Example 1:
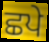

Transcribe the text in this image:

ਛਪੇ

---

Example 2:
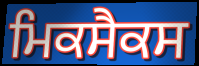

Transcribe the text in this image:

ਮਿਕਸੈਕਸ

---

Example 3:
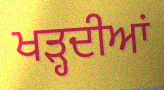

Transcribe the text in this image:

ਖੜ੍ਹਦੀਆਂ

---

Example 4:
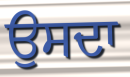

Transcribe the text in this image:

ਉਸਦਾ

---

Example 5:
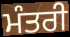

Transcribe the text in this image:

ਮੰਤਰੀ